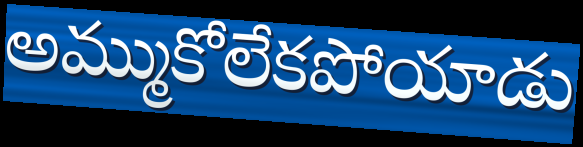
అమ్ముకోలేకపోయాడు